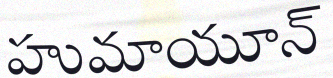
హుమాయూన్